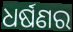
ଧର୍ଷଣର